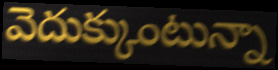
వెదుక్కుంటున్నా